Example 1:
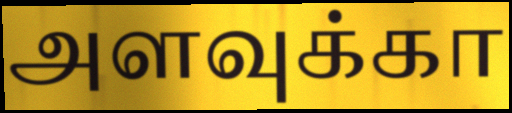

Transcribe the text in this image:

அளவுக்கா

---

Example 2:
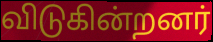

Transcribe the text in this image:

விடுகின்றனர்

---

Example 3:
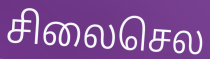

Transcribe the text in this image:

சிலைசெல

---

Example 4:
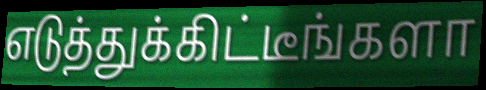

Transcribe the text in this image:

எடுத்துக்கிட்டீங்களா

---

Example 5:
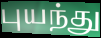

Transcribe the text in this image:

புயந்து